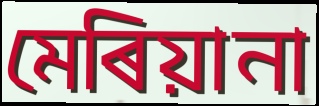
মেৰিয়ানা